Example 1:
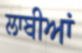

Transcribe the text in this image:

ਲਾਬੀਆਂ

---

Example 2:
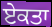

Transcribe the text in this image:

ਏਕਤਾ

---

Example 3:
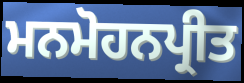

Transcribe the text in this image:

ਮਨਮੋਹਨਪ੍ਰੀਤ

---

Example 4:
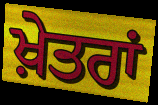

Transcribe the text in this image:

ਖ਼ੇਤਰਾਂ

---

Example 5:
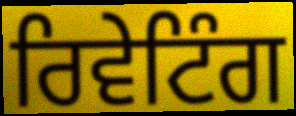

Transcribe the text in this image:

ਰਿਵੇਟਿੰਗ